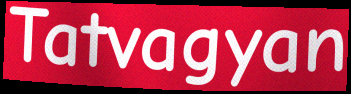
Tatvagyan